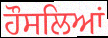
ਹੌਸਲਿਆਂ